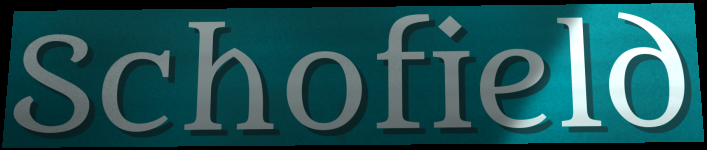
Schofield